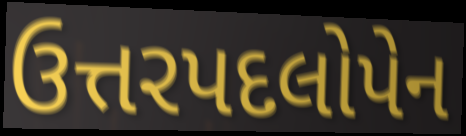
ઉત્તરપદલોપેન